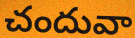
చందువా